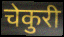
चेकुरी